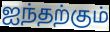
ஐந்தற்கும்